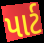
પાર્ટ